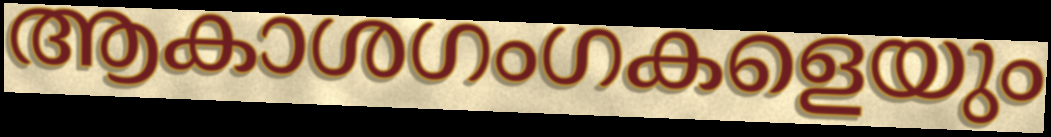
ആകാശഗംഗകളെയും